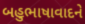
બહુભાષાવાદને